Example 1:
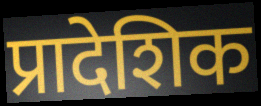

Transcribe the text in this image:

प्रादेशिक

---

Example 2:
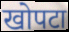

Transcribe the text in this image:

खोपटा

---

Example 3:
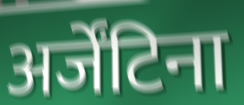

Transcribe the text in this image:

अर्जेंटिना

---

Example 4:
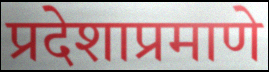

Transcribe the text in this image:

प्रदेशाप्रमाणे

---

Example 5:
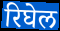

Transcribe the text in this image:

रिघेल